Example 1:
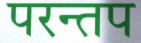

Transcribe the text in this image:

परन्तप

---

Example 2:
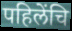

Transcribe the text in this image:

पहिलेंचि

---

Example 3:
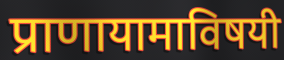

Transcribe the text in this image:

प्राणायामाविषयी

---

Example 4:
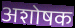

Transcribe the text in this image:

अशोषक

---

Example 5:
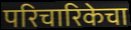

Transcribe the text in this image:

परिचारिकेचा